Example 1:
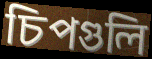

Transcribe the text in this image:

চিপগুলি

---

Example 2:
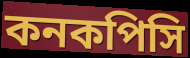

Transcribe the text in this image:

কনকপিসি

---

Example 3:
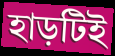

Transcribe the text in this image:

হাড়টিই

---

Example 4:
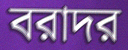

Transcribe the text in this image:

বরাদর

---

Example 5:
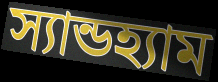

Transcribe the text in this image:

স্যান্ডহ্যাম